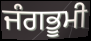
ਜੰਗਭੂਮੀ